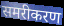
समरीकरण